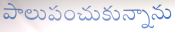
పాలుపంచుకున్నాను